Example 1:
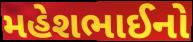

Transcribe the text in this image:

મહેશભાઈનો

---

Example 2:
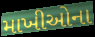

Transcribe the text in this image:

માખીઓના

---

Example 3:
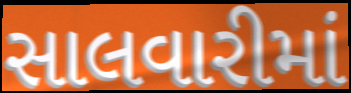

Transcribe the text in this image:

સાલવારીમાં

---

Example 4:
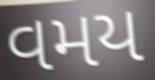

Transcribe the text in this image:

વમય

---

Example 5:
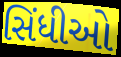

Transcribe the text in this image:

સિંધીઓ